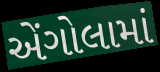
એંગોલામાં